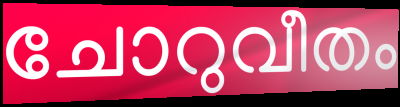
ചോറുവീതം